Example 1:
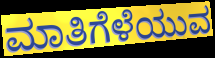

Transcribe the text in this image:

ಮಾತಿಗೆಳೆಯುವ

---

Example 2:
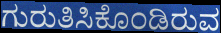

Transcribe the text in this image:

ಗುರುತಿಸಿಕೊಂಡಿರುವ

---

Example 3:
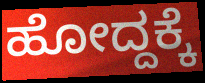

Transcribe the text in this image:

ಹೋದ್ದಕ್ಕೆ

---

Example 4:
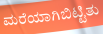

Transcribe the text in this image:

ಮರೆಯಾಗಿಬಿಟ್ಟಿತು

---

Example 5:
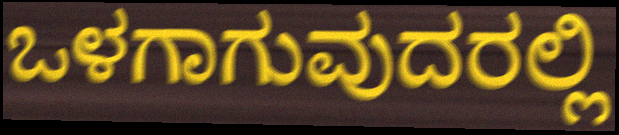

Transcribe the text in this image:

ಒಳಗಾಗುವುದರಲ್ಲಿ